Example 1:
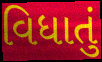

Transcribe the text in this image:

વિધાતું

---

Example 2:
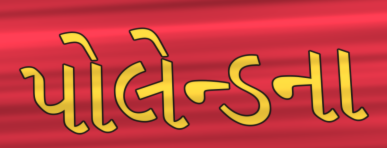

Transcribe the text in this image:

પોલેન્ડના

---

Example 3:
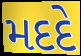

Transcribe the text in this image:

મદદે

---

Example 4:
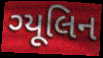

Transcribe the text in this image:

ગ્યૂલિન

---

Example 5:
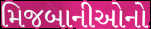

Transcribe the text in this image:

મિજબાનીઓનો